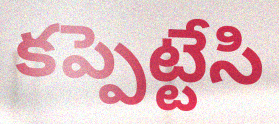
కప్పెట్టేసి